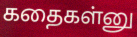
கதைகள்னு